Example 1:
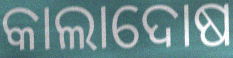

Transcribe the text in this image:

କାଲାଦୋଷ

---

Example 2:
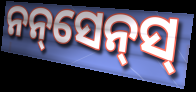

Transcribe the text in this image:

ନନ୍‌ସେନ୍‌ସ୍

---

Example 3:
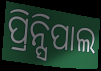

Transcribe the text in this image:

ପ୍ରିନ୍ସିପାଲ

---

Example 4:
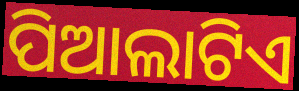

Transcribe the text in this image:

ପିଆଲାଟିଏ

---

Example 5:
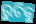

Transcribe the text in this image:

ରୁଚିକୁ